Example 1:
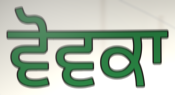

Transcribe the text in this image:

ਵੋਵਕਾ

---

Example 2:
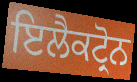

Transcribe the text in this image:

ਇਲੈਕਟ੍ਰੋਨ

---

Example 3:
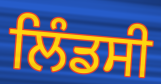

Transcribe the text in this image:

ਲਿੰਡਸੀ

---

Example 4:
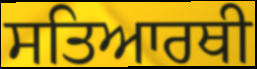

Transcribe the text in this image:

ਸਤਿਆਰਥੀ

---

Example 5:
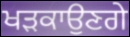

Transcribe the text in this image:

ਖੜਕਾਉਣਗੇ